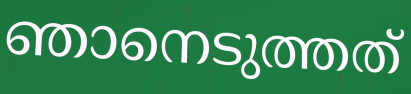
ഞാനെടുത്തത്